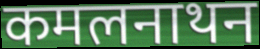
कमलनाथन